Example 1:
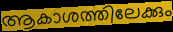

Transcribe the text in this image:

ആകാശത്തിലേക്കും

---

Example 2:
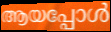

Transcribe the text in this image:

ആയപ്പോൾ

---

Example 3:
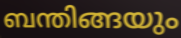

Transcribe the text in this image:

ബന്തിങ്ങയും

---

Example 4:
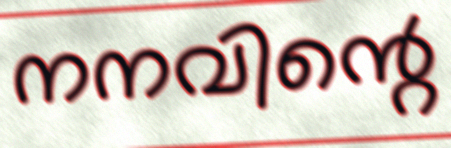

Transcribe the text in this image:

നനവിന്റെ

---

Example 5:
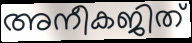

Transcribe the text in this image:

അനീകജിത്